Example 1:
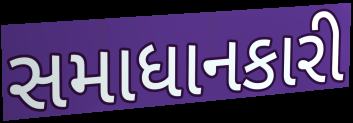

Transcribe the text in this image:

સમાધાનકારી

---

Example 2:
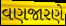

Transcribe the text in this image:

વણજારણે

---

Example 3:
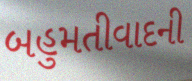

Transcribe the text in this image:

બહુમતીવાદની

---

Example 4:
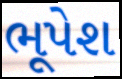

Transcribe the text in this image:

ભૂપેશ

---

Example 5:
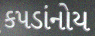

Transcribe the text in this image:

કપડાંનોય